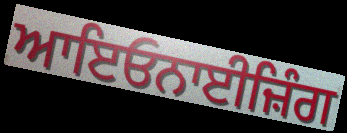
ਆਇਓਨਾਈਜ਼ਿੰਗ